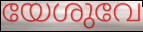
യേശുവേ